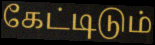
கேட்டிடும்